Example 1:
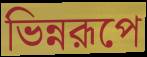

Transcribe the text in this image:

ভিন্নরূপে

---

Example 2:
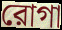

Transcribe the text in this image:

রোগা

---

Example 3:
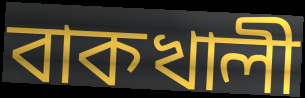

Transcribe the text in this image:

বাকখালী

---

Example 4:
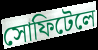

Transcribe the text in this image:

সোফিটেলে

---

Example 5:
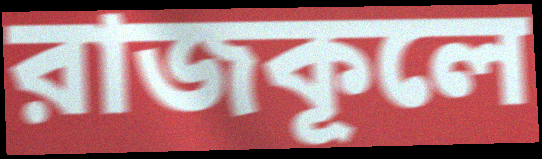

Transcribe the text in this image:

রাজকূলে